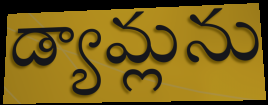
డ్యామ్లను